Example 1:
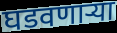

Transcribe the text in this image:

घडवणाऱ्या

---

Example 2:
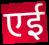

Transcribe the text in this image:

एई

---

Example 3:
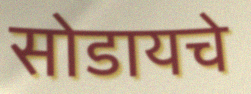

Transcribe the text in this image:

सोडायचे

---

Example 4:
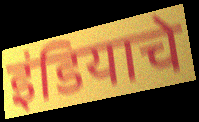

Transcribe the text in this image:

इंडियाचे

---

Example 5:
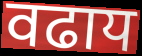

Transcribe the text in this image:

वढाय